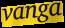
vanga